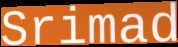
Srimad